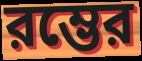
রম্ভের